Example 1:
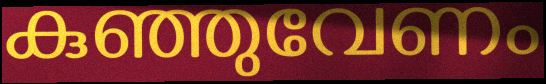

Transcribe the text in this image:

കുഞ്ഞുവേണം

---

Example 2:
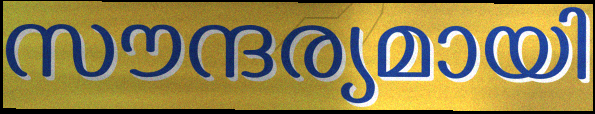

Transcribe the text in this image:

സൗന്ദര്യമായി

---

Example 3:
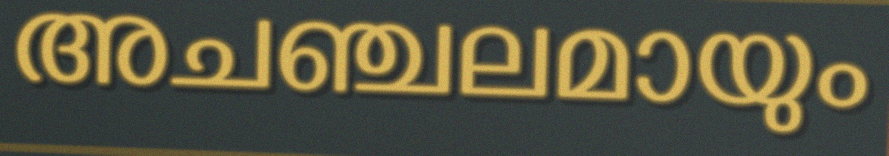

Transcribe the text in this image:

അചഞ്ചലമായും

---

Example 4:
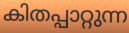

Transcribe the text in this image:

കിതപ്പാറ്റുന്ന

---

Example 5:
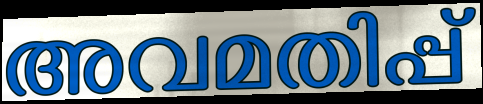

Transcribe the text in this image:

അവമതിപ്പ്